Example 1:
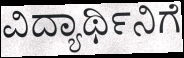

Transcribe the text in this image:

ವಿದ್ಯಾರ್ಥಿನಿಗೆ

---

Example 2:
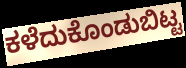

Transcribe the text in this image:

ಕಳೆದುಕೊಂಡುಬಿಟ್ಟ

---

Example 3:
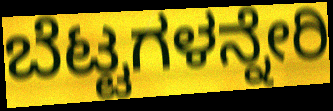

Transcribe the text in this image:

ಬೆಟ್ಟಗಳನ್ನೇರಿ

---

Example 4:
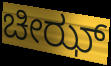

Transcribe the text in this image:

ಚೀಝ್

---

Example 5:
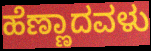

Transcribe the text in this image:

ಹೆಣ್ಣಾದವಳು